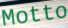
Motto